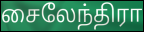
சைலேந்திரா